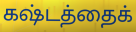
கஷ்டத்தைக்